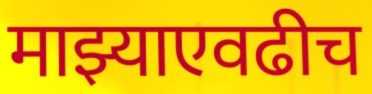
माझ्याएवढीच